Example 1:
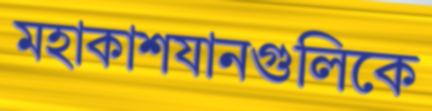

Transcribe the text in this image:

মহাকাশযানগুলিকে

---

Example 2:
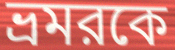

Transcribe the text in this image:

ভ্রমরকে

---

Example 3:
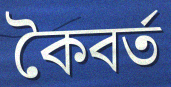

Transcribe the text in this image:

কৈবর্ত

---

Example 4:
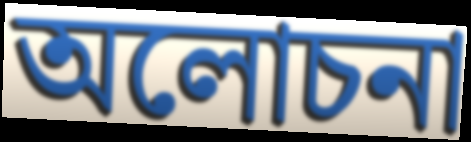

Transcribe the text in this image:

অলোচনা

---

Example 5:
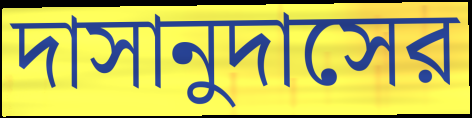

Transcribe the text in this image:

দাসানুদাসের